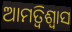
ଆମତ୍ବିଶ୍ୱାସ